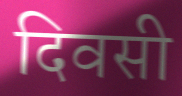
दिवसी